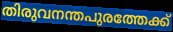
തിരുവനന്തപുരത്തേക്ക്